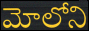
మోలోని